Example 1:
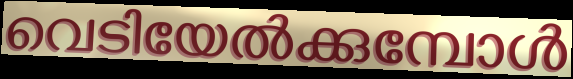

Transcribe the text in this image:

വെടിയേൽക്കുമ്പോൾ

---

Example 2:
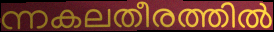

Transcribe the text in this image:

ന്നകലതീരത്തിൽ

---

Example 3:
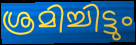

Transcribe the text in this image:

ശ്രമിച്ചിട്ടും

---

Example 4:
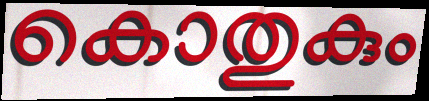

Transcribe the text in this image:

കൊതുകും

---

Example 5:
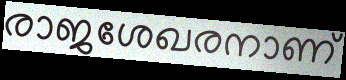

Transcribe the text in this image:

രാജശേഖരനാണ്